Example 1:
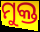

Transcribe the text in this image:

ମୁକ୍ତ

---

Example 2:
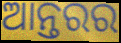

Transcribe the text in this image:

ଆନ୍ତରର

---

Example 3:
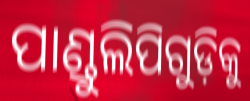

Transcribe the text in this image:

ପାଣ୍ଡୁଲିପିଗୁଡ଼ିକୁ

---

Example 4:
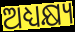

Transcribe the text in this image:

ଅଧ୍ୟକ୍ଷ୍ୟ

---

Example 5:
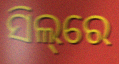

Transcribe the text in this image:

ସିଲ୍‌ରେ